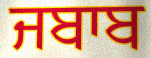
ਜਬਾਬ